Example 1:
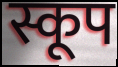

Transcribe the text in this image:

स्कूप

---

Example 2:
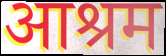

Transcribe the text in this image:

आश्रम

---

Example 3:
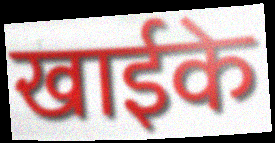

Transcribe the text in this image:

खाईके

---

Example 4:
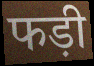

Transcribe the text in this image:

फड़ी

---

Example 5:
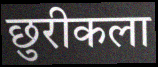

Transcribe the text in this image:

छुरीकला